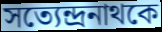
সত্যেন্দ্রনাথকে